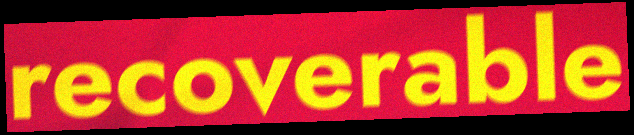
recoverable